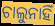
ଚାଲୁନାହିଁ